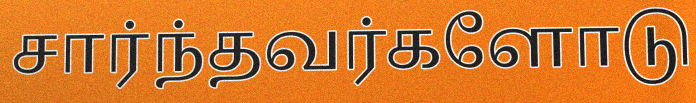
சார்ந்தவர்களோடு